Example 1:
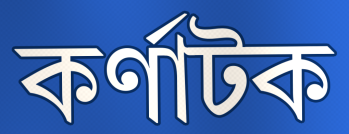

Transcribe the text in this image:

কর্ণাটক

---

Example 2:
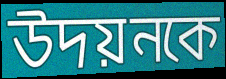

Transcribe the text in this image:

উদয়নকে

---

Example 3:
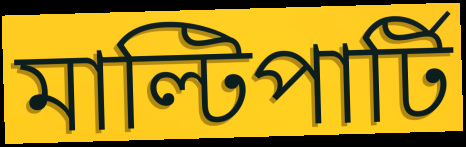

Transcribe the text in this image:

মাল্টিপার্টি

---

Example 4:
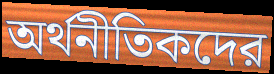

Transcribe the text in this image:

অর্থনীতিকদের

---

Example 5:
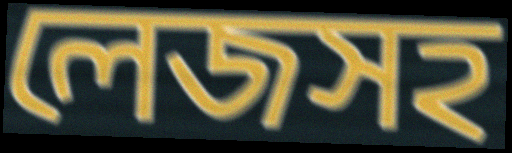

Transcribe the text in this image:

লেজসহ